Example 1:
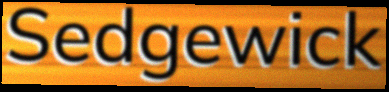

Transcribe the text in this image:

Sedgewick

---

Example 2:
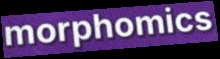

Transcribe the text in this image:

morphomics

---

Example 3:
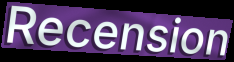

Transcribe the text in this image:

Recension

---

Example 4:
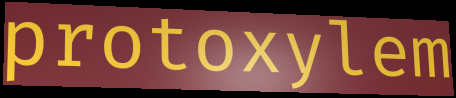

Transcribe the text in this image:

protoxylem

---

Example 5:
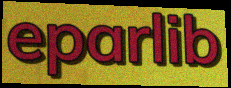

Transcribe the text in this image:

eparlib